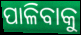
ପାଳିବାକୁ